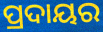
ପ୍ରଦାୟର